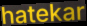
hatekar